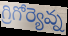
గ్రిగోర్యెవ్న